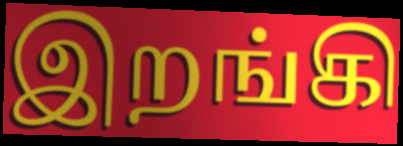
இறங்கி